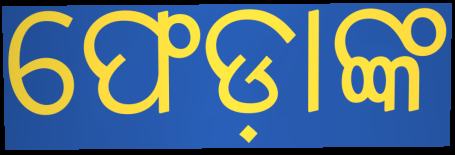
ଫେଡ଼ାଙ୍କ